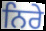
ਨਿਰੇ